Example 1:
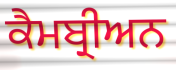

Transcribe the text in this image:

ਕੈਮਬ੍ਰੀਅਨ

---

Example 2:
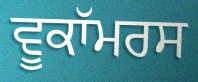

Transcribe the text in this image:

ਵੂਕਾੱਮਰਸ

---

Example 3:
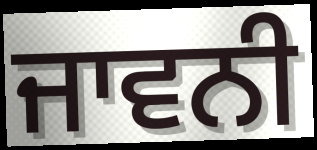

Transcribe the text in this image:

ਜਾਵਨੀ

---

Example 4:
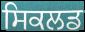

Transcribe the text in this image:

ਸਿਕਲਡ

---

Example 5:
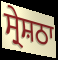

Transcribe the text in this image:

ਸ੍ਰੇਸ਼ਠਾ